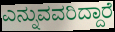
ಎನ್ನುವವರಿದ್ದಾರೆ